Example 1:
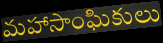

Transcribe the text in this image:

మహాసాంఘికులు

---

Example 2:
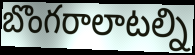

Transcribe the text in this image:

బొంగరాలాటల్ని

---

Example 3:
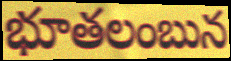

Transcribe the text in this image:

భూతలంబున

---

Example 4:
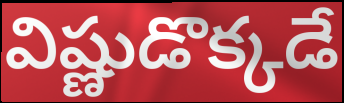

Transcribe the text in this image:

విష్ణుడొక్కడే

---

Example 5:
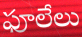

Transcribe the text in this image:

ఫూలేలు